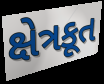
ક્ષેત્રકૂત